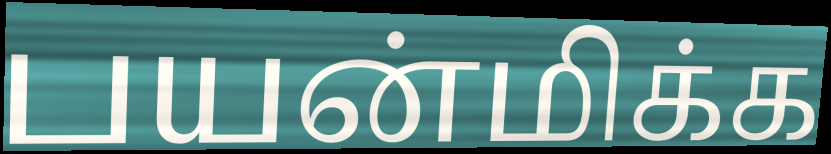
பயன்மிக்க